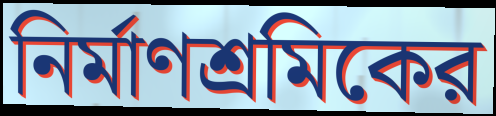
নির্মাণশ্রমিকের